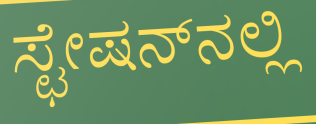
ಸ್ಟೇಷನ್‌ನಲ್ಲಿ